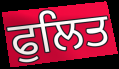
ਫੁਲਿਤ